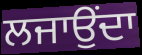
ਲਜਾਉਂਦਾ